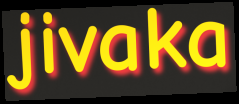
jivaka